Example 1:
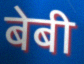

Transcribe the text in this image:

बेबी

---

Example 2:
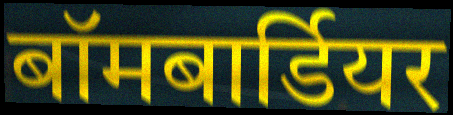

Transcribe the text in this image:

बॉमबार्डियर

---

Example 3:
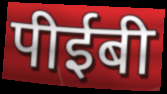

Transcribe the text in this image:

पीईबी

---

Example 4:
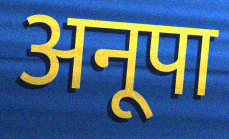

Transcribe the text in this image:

अनूपा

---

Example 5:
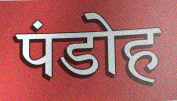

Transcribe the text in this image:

पंडोह